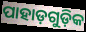
ପାହାଡ଼ଗୁଡ଼ିକ